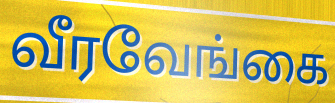
வீரவேங்கை